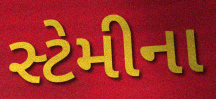
સ્ટેમીના